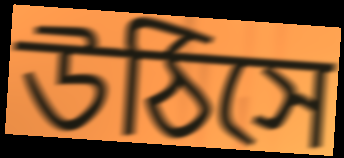
উঠিসে